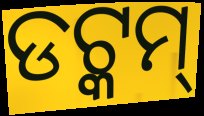
ଡଟ୍କମ୍